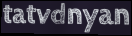
tatvdnyan